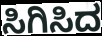
ಸಿಗಿಸಿದ